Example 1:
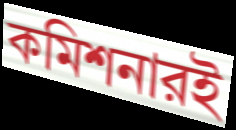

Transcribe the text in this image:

কমিশনারই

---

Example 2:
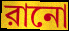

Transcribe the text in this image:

রানো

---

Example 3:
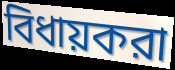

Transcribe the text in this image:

বিধায়করা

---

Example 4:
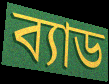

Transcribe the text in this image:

ব্যাড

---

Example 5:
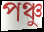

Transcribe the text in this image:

পঞ্চু